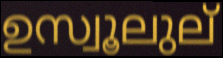
ഉസ്വൂലുല്